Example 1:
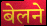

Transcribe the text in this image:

बेलने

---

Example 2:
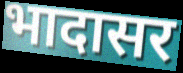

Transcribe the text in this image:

भादासर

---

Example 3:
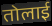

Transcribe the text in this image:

तोलाई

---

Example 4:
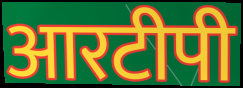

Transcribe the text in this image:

आरटीपी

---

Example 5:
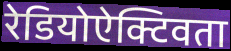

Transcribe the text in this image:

रेडियोऐक्टिवता